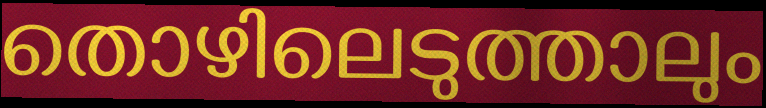
തൊഴിലെടുത്താലും